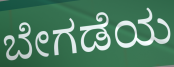
ಬೇಗಡೆಯ